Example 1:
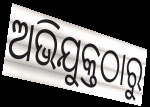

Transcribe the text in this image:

ଅଭିଯୁକ୍ତଠାରୁ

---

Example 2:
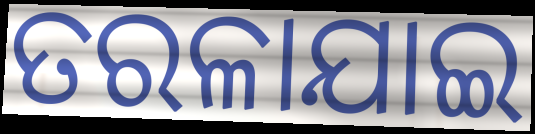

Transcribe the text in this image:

ତରଳାଯାଇ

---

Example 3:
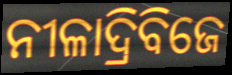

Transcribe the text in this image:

ନୀଳାଦ୍ରିବିଜେ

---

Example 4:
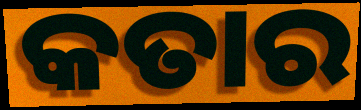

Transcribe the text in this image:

କତାର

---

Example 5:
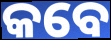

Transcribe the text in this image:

କବେ